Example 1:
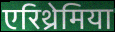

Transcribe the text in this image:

एरिथ्रेमिया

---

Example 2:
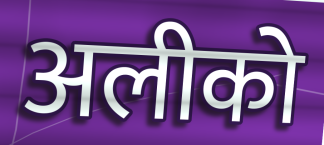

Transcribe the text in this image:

अलीको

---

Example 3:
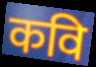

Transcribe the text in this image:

कवि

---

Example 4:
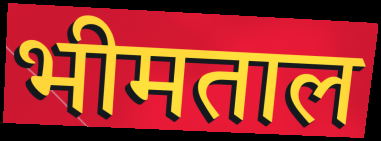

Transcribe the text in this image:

भीमताल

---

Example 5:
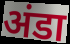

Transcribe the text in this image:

अंडा